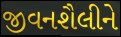
જીવનશૈલીને